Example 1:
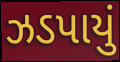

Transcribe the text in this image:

ઝડપાયું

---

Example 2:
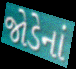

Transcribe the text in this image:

જોડેનાં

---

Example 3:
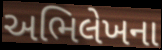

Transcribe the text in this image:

અભિલેખના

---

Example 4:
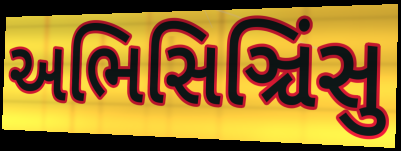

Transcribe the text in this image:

અભિસિઞ્ચિંસુ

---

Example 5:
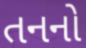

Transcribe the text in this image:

તનનો